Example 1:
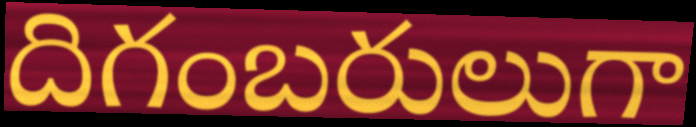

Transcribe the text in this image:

దిగంబరులుగా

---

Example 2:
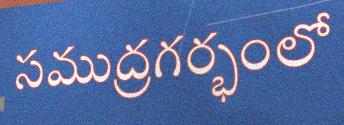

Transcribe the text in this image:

సముద్రగర్భంలో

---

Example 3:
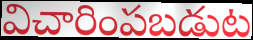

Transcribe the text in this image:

విచారింపబడుట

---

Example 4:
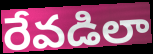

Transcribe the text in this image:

రేవడిలా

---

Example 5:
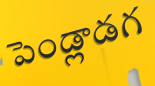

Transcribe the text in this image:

పెండ్లాడగ